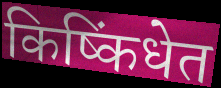
किष्किंधेत